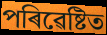
পৰিৱেষ্টিত